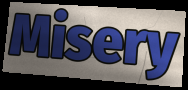
Misery